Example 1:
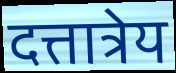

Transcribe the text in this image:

दत्तात्रेय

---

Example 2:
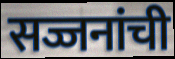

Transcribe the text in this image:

सज्जनांची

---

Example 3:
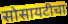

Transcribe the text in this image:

सोसायटीचा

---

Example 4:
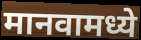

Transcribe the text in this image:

मानवामध्ये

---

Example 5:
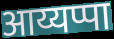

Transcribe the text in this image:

आय्यप्पा